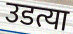
उडत्या